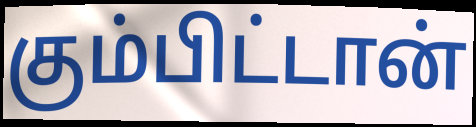
கும்பிட்டான்